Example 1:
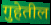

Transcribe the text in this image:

गुहेतील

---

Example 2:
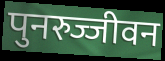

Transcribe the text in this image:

पुनरुज्‍जीवन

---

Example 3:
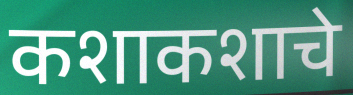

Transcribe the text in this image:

कशाकशाचे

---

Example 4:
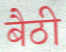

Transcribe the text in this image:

बैठी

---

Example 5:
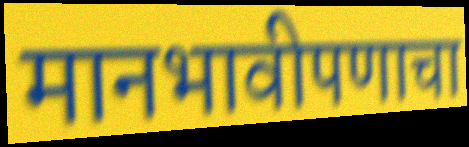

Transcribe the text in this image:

मानभावीपणाचा